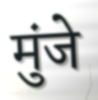
मुंजे